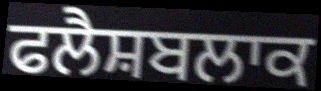
ਫਲੈਸ਼ਬਲਾਕ